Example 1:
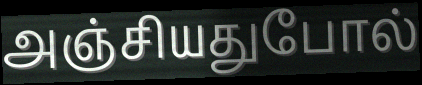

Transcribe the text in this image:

அஞ்சியதுபோல்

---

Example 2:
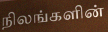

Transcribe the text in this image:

நிலங்களின்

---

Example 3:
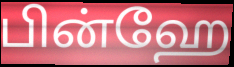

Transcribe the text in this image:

பின்ஹே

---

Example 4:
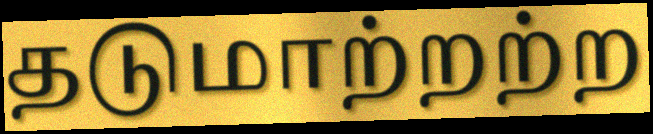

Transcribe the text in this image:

தடுமாற்றற்ற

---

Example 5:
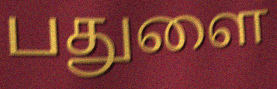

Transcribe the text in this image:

பதுளை